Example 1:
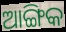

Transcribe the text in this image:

ଆଙ୍ଗିକ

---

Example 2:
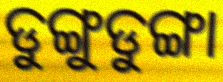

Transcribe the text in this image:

ଡୁଙ୍ଗୁଡୁଙ୍ଗା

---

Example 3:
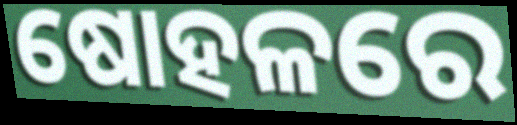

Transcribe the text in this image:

ଷୋହଳରେ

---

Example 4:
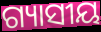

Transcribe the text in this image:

ଗ୍ୟାସୀୟ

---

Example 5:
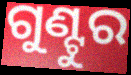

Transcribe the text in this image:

ଗୁଣ୍ଟୁର